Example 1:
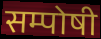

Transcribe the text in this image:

सम्पोषी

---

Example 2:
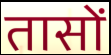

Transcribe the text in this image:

तासों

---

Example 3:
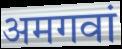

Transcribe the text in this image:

अमगवां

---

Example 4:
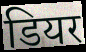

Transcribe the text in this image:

डियर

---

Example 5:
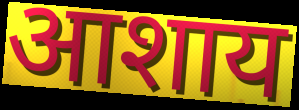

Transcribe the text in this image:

आशाय